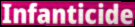
Infanticide